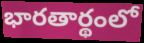
భారతార్థంలో